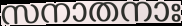
സനാതനാഃ